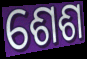
ଶେଶ